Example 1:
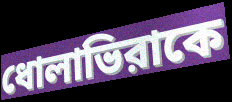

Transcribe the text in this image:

ধোলাভিরাকে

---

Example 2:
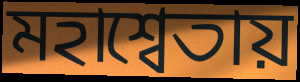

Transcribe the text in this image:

মহাশ্বেতায়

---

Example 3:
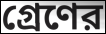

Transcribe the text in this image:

গ্রেণের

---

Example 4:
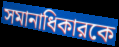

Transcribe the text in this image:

সমানাধিকারকে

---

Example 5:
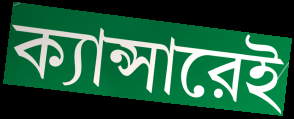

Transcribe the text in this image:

ক্যান্সারেই